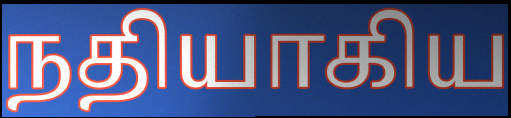
நதியாகிய